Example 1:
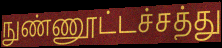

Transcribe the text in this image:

நுண்ணூட்டச்சத்து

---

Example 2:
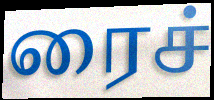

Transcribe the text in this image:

ரைச்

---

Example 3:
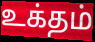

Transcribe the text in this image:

உக்தம்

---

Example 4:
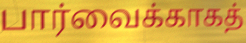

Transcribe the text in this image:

பார்வைக்காகத்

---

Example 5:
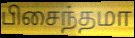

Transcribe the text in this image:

பிசைந்தமா